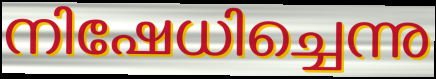
നിഷേധിച്ചെന്നു